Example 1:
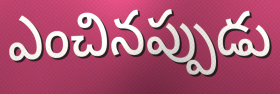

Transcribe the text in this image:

ఎంచినప్పుడు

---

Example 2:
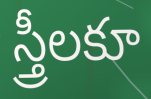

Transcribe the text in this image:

స్త్రీలకూ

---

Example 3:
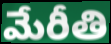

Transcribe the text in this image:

మేరీతి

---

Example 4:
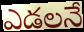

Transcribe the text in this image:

ఎడలనే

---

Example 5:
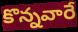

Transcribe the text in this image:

కొన్నవారే